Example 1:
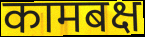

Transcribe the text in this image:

कामबक्ष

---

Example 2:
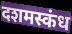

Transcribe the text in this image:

दशमस्कंध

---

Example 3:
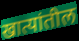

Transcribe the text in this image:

खात्यांतील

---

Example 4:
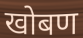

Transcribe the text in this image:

खोबण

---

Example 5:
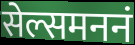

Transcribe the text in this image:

सेल्समननं